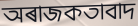
অৰাজকতাবাদ